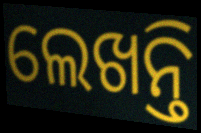
ଲେଖନ୍ତି